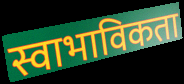
स्वाभाविकता